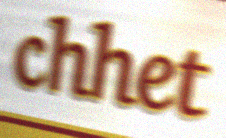
chhet